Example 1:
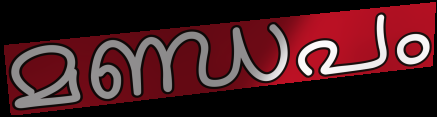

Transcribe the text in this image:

മണ്ഡപം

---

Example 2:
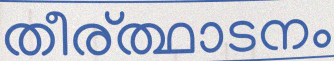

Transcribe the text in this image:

തീര്ത്ഥാടനം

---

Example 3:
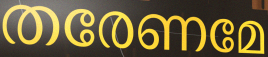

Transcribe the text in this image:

തരേണമേ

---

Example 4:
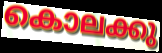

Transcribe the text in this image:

കൊലക്കു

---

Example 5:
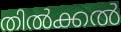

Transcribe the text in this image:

തിൽക്കൽ